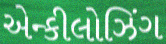
એન્કીલોઝિંગ